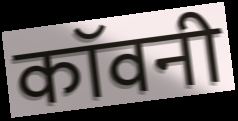
कॉवनी